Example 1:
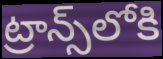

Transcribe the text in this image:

ట్రాన్స్‌లోకి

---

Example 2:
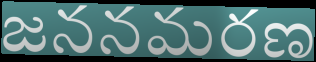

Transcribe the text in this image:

జననమరణ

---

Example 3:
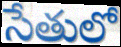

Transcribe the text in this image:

సేతులో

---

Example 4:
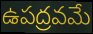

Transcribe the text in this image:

ఉపద్రవమే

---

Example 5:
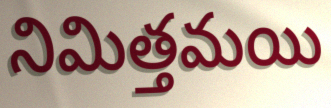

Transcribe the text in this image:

నిమిత్తమయి